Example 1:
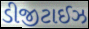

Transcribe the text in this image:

ડીજીટાઈઝ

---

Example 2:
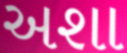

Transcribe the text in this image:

અશા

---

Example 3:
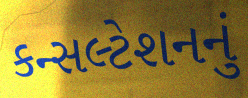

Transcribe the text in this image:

કન્સલ્ટેશનનું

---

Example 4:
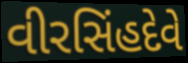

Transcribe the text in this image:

વીરસિંહદેવે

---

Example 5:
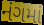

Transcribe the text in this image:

નંગમાં